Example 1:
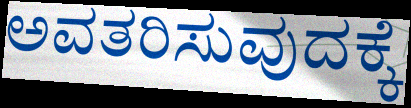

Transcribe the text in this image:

ಅವತರಿಸುವುದಕ್ಕೆ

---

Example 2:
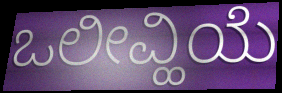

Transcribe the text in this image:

ಒಲೀವ್ಹಿಯೆ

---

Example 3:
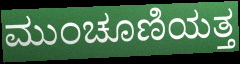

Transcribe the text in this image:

ಮುಂಚೂಣಿಯತ್ತ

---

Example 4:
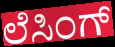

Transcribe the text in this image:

ಲೆಸಿಂಗ್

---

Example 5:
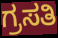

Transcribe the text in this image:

ಗ್ರಸತಿ